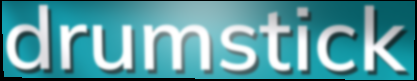
drumstick